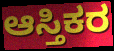
ಆಸ್ತಿಕರ